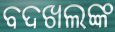
ବଦଖଲଙ୍କ